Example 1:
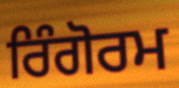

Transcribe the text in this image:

ਰਿੰਗੋਰਮ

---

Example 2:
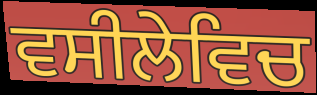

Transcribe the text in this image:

ਵਸੀਲੇਵਿਚ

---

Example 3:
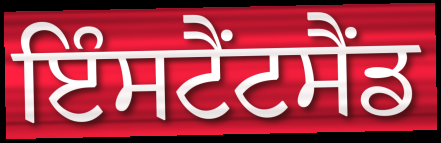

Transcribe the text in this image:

ਇੰਸਟੈਂਟਸੈਂਡ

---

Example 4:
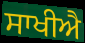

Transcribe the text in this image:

ਸਾਖੀਐ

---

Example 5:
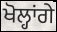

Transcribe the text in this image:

ਖੋਲ੍ਹਾਂਗੇ